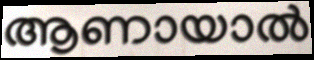
ആണായാൽ